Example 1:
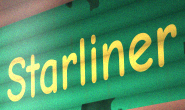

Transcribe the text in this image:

Starliner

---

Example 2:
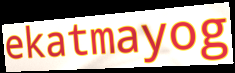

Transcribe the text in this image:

ekatmayog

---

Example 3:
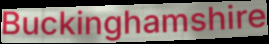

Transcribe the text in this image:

Buckinghamshire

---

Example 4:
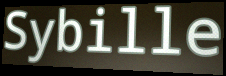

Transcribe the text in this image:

Sybille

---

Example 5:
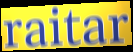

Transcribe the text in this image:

raitar